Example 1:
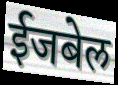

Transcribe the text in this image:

ईजबेल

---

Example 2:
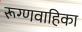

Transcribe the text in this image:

रूग्णवाहिका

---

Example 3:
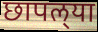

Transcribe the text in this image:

छापल्या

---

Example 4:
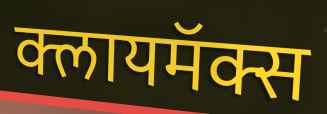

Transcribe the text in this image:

क्लायमॅक्स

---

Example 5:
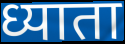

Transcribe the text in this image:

ध्याता